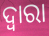
ଦ୍ଵାରା